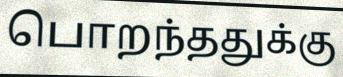
பொறந்ததுக்கு